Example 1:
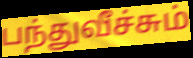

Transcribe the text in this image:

பந்துவீச்சும்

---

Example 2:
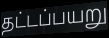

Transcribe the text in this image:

தட்டப்பயறு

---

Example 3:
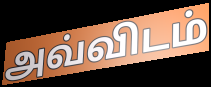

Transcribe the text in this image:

அவ்விடம்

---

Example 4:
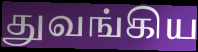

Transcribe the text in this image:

துவங்கிய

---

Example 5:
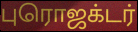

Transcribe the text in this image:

புரொஜக்டர்